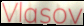
Vlasov